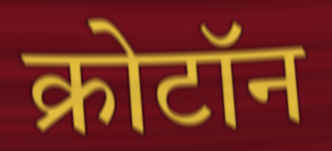
क्रोटॉन